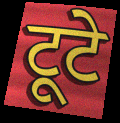
टूटे